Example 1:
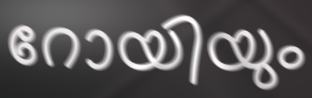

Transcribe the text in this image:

റോയിയും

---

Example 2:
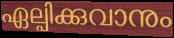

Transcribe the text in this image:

ഏല്പിക്കുവാനും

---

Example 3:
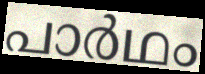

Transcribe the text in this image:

പാർഥം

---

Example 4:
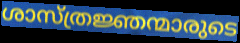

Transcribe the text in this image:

ശാസ്ത്രജ്ഞന്മാരുടെ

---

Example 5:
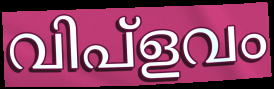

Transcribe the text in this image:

വിപ്ളവം